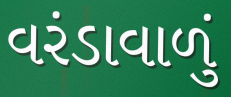
વરંડાવાળું